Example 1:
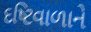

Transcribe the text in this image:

દષ્ટિવાળાને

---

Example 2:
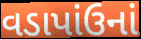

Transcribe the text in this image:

વડાપાંઉનાં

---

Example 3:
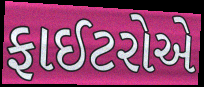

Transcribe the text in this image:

ફાઈટરોએ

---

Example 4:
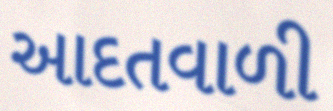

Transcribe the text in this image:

આદતવાળી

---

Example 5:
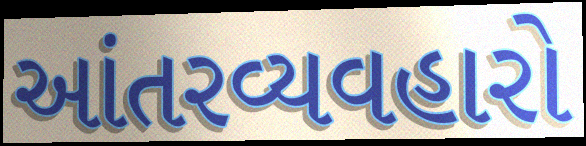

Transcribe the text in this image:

આંતરવ્યવહારો